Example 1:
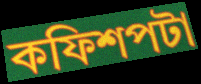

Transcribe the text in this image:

কফিশপটা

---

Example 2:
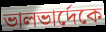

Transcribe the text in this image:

ভালভার্দেকে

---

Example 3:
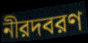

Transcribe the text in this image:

নীরদবরণ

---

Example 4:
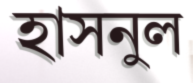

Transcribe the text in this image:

হাসনুল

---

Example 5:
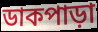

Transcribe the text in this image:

ডাকপাড়া